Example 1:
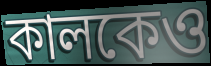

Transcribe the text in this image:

কালকেও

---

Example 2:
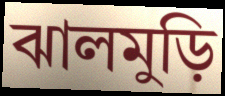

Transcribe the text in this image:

ঝালমুড়ি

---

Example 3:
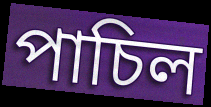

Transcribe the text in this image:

পাচিল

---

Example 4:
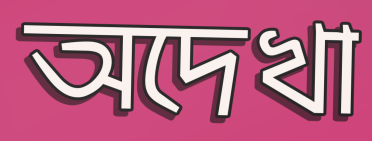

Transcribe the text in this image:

অদেখা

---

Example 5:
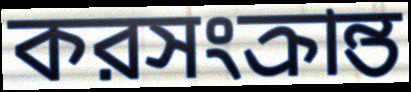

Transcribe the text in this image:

করসংক্রান্ত